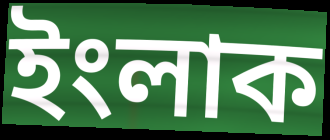
ইংলাক